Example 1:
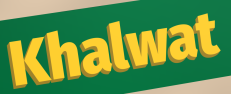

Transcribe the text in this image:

Khalwat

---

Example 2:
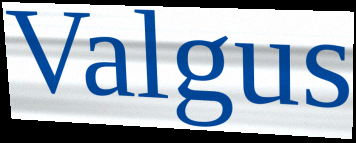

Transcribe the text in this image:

Valgus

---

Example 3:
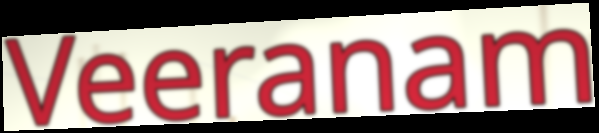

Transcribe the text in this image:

Veeranam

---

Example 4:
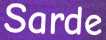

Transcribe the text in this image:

Sarde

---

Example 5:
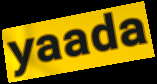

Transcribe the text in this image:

yaada